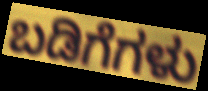
ಬಡಿಗೆಗಳು